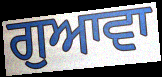
ਗੁਆਵਾ